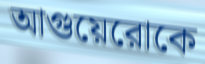
আগুয়েরোকে